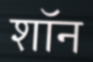
शॉन